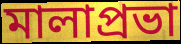
মালাপ্রভা